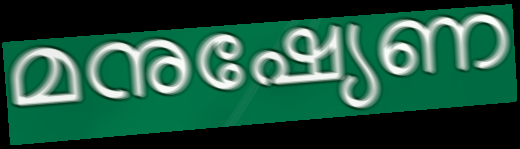
മനുഷ്യേണ